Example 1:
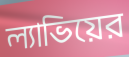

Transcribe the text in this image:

ল্যাভিয়ের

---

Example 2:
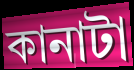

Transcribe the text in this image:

কানাটা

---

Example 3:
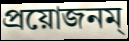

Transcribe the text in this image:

প্রয়োজনম্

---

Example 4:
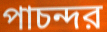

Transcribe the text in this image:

পাচন্দর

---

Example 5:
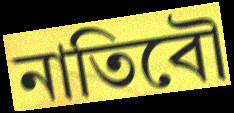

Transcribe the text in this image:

নাতিবৌ